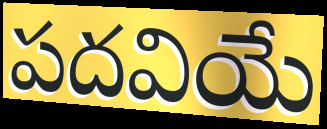
పదవియే